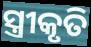
ସ୍ତ୍ରୀକୃତି